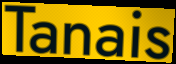
Tanais